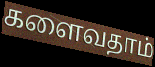
களைவதாம்